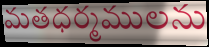
మతధర్మములను